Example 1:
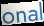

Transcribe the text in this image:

onal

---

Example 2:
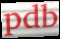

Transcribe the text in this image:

pdb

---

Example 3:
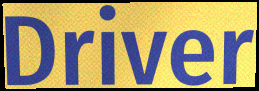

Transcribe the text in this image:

Driver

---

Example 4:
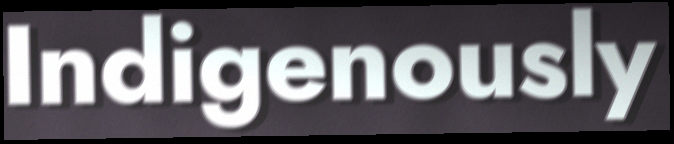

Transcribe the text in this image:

Indigenously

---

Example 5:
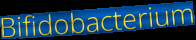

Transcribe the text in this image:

Bifidobacterium